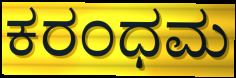
ಕರಂಧಮ